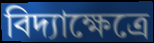
বিদ্যাক্ষেত্রে